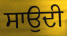
ਸਾਉਦੀ